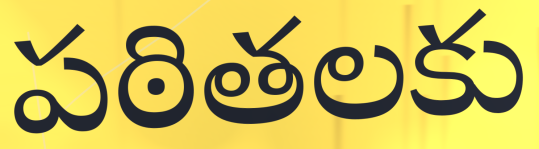
పఠితలకు